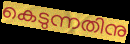
കെടുന്നതിനു